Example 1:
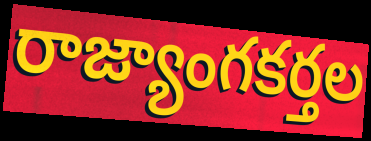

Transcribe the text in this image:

రాజ్యాంగకర్తల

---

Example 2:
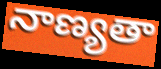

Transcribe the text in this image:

నాణ్యతా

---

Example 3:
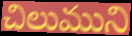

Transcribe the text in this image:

చిలుముని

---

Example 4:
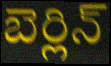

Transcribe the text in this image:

బెర్లిన్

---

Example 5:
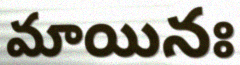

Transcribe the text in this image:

మాయినః